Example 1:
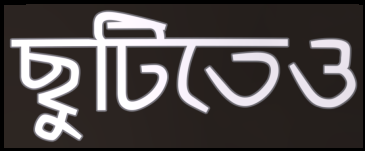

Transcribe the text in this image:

ছুটিতেও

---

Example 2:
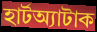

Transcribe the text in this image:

হার্টঅ্যাটাক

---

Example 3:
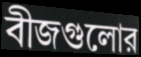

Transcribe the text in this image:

বীজগুলোর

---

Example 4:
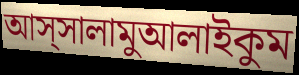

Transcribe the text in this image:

আস্সালামুআলাইকুম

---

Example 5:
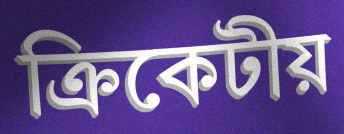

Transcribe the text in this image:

ক্রিকেটীয়